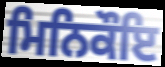
ਮਿਨਿਕੌਇ